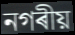
নগৰীয়